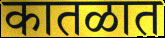
कातळात